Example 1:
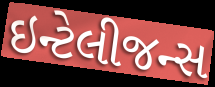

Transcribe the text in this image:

ઇન્ટેલીજન્સ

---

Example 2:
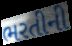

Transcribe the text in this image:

ભરતીની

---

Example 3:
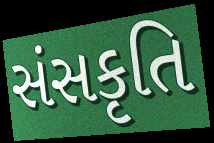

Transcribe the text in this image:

સંસકૃતિ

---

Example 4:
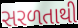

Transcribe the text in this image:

સરળતાથી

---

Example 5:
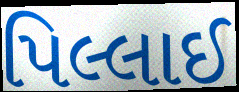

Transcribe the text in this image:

પિલ્લાઈ